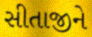
સીતાજીને